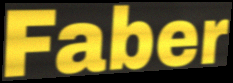
Faber